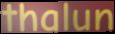
thalun